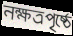
নক্ষত্রপৃষ্ঠে